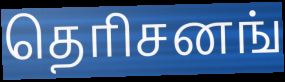
தெரிசனங்